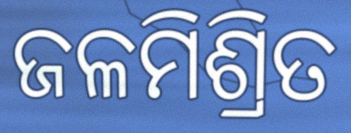
ଜଳମିଶ୍ରିତ